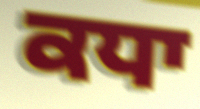
ਕਧਾ